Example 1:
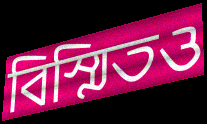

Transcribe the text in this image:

বিস্মিতও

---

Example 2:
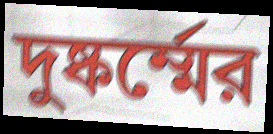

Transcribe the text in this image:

দুষ্কর্ম্মের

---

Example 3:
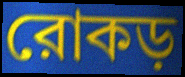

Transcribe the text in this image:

রোকড়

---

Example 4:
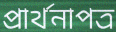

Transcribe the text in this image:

প্রার্থনাপত্র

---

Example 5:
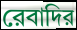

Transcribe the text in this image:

রেবাদির